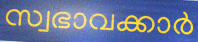
സ്വഭാവക്കാർ